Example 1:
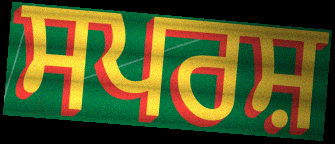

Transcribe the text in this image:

ਸਪਰਸ਼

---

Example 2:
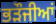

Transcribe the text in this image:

ਭੜੌਜੀਆਂ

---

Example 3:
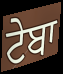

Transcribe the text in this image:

ਟੇਬਾ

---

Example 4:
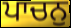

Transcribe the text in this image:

ਪਾਚਨੁ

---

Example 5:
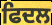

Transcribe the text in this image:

ਫਿਦਲ